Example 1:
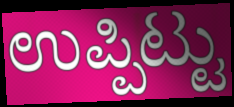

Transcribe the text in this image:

ಉಪ್ಪಿಟ್ಟು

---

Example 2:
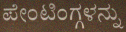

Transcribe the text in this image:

ಪೇಂಟಿಂಗ್ಗಳನ್ನು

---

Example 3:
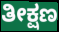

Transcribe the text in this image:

ತೀಕ್ಷಣ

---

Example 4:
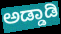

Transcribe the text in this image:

ಅಡ್ಡಾಡಿ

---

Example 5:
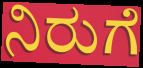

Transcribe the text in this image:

ನಿರುಗೆ